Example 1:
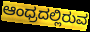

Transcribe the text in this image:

ಆಂಧ್ರದಲ್ಲಿರುವ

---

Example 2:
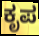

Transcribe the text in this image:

ಕೃಪ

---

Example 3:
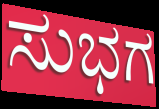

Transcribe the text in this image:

ಸುಭಗ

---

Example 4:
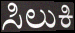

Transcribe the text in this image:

ಸಿಲುಕಿ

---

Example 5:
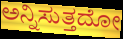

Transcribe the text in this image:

ಅನ್ನಿಸುತ್ತದೋ